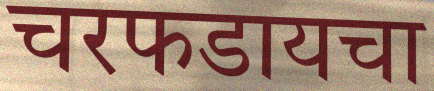
चरफडायचा